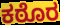
ಕಠೊರ